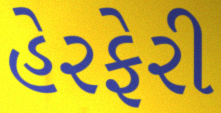
હેરફેરી